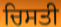
ਚਿਸਤੀ